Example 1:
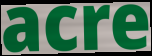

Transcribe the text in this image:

acre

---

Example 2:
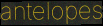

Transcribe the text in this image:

antelopes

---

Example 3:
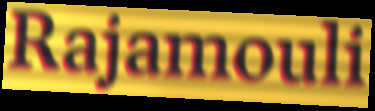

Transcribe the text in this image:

Rajamouli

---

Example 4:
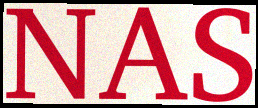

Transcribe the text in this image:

NAS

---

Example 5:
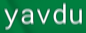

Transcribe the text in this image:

yavdu